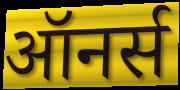
ऑनर्स